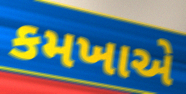
કમખાએ